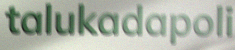
talukadapoli